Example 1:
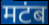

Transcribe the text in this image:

मटंब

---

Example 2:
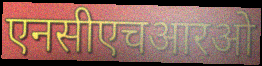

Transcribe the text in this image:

एनसीएचआरओ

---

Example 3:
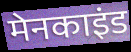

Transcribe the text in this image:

मेनकाइंड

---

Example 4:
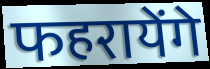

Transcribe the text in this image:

फहरायेंगे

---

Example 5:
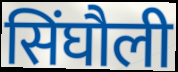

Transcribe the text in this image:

सिंघौली